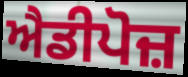
ਐਡੀਪੋਜ਼